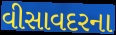
વીસાવદરના